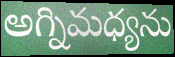
అగ్నిమధ్యను